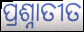
ପ୍ରଶ୍ନାତୀତ